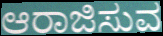
ಆರಾಜಿಸುವ